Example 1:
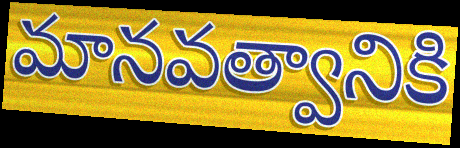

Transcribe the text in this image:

మానవత్వానికి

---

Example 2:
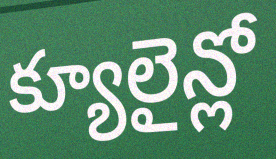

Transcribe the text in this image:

క్యూలైన్లో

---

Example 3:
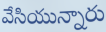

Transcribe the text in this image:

వేసియున్నారు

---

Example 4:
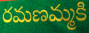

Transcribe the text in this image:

రమణమ్మకి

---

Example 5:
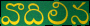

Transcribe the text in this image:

వొదిలిన